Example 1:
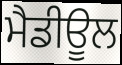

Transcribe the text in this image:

ਮੈਡੀਊਲ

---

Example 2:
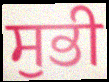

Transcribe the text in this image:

ਸੁਭੀ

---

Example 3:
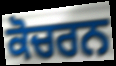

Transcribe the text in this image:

ਕੋਚਰਨ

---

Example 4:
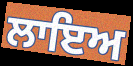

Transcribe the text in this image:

ਲਾਇਅ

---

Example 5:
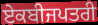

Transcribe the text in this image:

ਏਕਬੀਜਪਤਰੀ